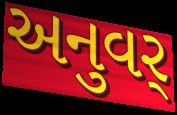
અનુવર્